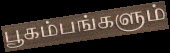
பூகம்பங்களும்